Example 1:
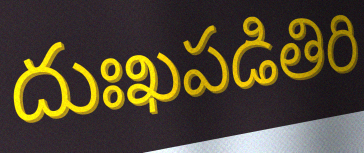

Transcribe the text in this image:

దుఃఖపడితిరి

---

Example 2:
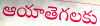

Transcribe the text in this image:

ఆయాతెగలకు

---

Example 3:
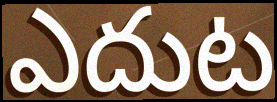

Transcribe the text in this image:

ఎదుట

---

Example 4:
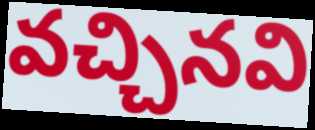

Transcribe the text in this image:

వచ్చినవి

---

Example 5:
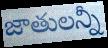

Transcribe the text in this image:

జాతులన్నీ